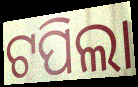
ଟପିଲା